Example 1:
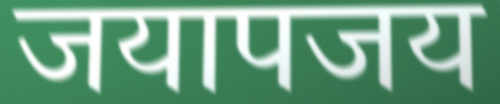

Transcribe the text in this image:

जयापजय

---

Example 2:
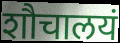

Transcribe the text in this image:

शौचालयं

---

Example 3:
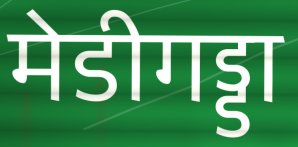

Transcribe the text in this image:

मेडीगड्डा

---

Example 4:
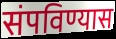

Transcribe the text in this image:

संपविण्यास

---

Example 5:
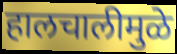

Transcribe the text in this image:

हालचालीमुळे